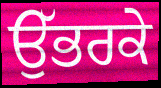
ਉੱਭਰਕੇ